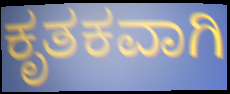
ಕೃತಕವಾಗಿ